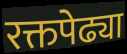
रक्तपेढ्या